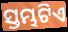
ସ୍ତମ୍ଭଟିଏ